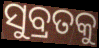
ସୁବ୍ରତକୁ